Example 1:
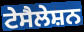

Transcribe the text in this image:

ਟੇਸੈਲੇਸ਼ਨ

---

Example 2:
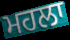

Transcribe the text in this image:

ਮਹਲਾ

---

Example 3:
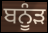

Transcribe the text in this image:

ਬਨੂੰੜ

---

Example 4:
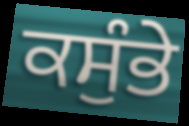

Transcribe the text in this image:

ਕਸੁੰਭੇ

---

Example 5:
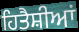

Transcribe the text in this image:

ਹਿਤੈਸ਼ੀਆਂ